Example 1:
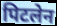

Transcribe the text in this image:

पिटलेन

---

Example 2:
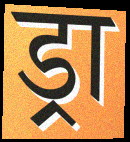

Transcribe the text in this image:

ड्रा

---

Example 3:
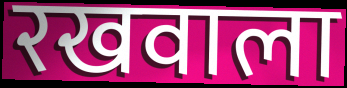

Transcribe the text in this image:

रखवाला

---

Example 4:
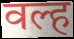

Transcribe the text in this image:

वल्ह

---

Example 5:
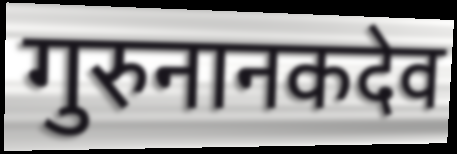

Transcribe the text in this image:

गुरुनानकदेव